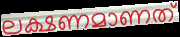
ലക്ഷണമാണത്